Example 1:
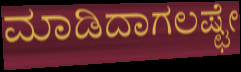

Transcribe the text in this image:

ಮಾಡಿದಾಗಲಷ್ಟೇ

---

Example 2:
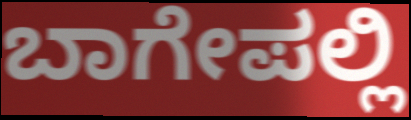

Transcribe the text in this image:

ಬಾಗೇಪಲ್ಲಿ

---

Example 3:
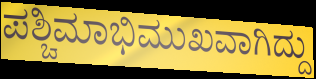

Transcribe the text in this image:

ಪಶ್ಚಿಮಾಭಿಮುಖವಾಗಿದ್ದು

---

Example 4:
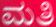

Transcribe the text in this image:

ಮತಿ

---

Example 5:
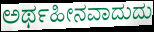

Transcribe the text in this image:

ಅರ್ಥಹೀನವಾದುದು